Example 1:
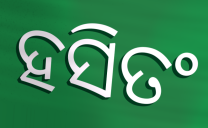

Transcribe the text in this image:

ହସିତଂ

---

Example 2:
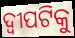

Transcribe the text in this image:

ଦ୍ୱୀପଟିକୁ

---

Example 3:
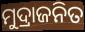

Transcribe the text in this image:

ମୁଦ୍ରାଜନିତ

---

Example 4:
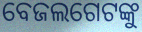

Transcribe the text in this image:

ବେଜଲଗେଟଙ୍କୁ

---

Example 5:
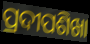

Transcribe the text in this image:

ପ୍ରଦୀପଶିଖା